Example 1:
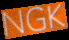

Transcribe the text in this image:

NGK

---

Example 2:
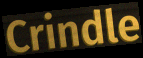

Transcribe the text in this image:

Crindle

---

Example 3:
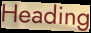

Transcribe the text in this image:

Heading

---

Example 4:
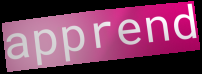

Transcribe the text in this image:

apprend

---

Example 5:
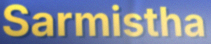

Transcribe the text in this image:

Sarmistha